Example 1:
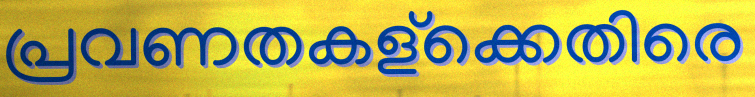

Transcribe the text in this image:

പ്രവണതകള്ക്കെതിരെ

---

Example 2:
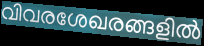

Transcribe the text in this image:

വിവരശേഖരങ്ങളിൽ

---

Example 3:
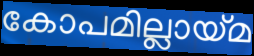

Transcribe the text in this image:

കോപമില്ലായ്മ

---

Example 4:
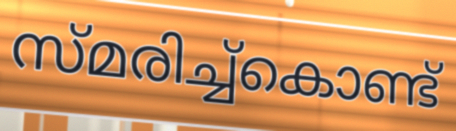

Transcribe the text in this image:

സ്മരിച്ച്കൊണ്ട്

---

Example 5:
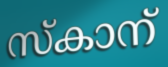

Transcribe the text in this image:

സ്കാന്